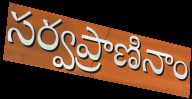
సర్వప్రాణినాం